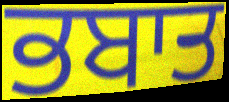
ਭਬਾਤ